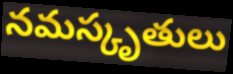
నమస్కృతులు